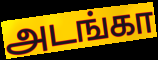
அடங்கா